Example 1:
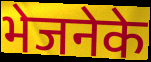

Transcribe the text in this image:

भेजनेके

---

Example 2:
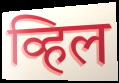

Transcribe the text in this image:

व्हिल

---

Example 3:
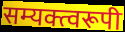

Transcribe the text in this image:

सम्यक्त्वरूपी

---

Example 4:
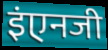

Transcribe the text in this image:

इंएनजी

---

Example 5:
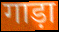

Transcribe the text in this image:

गाड़ा